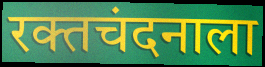
रक्तचंदनाला